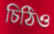
চিঠিও